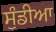
ਸੁੰਡੀਆ